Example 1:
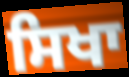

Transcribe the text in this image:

ਸਿਖਾ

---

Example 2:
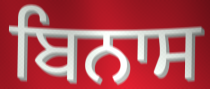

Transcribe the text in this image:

ਬਿਨਾਸ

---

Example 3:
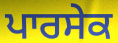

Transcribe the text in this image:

ਪਾਰਸੇਕ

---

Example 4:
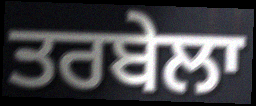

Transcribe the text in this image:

ਤਰਬੇਲਾ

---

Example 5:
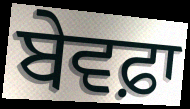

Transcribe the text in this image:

ਬੇਵਫ਼ਾ